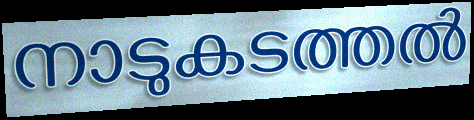
നാടുകടത്തൽ